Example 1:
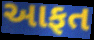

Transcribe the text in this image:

આફત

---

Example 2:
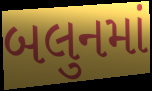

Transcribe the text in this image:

બલુનમાં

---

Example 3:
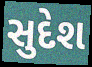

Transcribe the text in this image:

સુદેશ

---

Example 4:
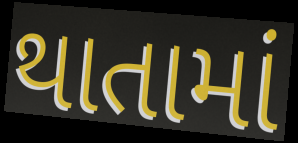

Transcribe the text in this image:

થાતામાં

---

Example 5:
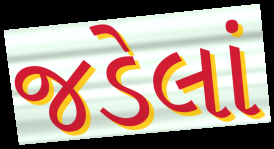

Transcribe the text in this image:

જડેલાં